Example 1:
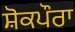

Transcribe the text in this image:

ਸ਼ੋਕਪੌਰਾ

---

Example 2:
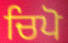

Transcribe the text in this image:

ਚਿਪੋ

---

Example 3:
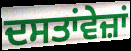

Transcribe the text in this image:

ਦਸਤਾਂਵੇਜ਼ਾਂ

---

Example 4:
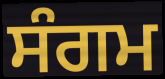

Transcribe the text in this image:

ਸੰਗਮ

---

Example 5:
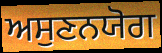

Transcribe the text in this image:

ਅਸੁਣਨਯੋਗ